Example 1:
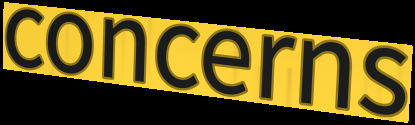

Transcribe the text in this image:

concerns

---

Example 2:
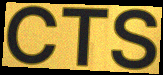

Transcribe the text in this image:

CTS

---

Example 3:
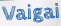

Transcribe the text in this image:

Vaigai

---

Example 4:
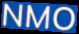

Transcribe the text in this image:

NMO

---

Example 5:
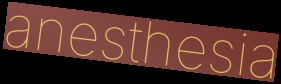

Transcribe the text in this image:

anesthesia